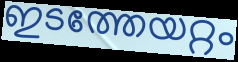
ഇടത്തേയറ്റം